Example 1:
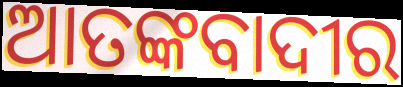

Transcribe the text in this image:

ଆତଙ୍କବାଦୀର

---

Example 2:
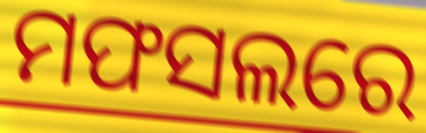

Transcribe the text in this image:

ମଫସଲରେ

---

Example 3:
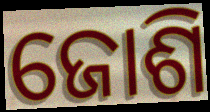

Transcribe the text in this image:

ଜୋଶି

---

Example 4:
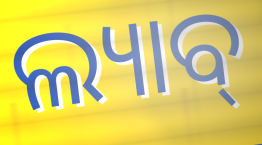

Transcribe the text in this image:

ଲ୍ୟାବ୍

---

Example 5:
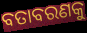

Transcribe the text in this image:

ବତାବରଣକୁ